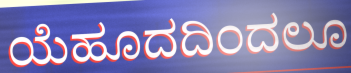
ಯೆಹೂದದಿಂದಲೂ